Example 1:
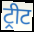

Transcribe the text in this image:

ट्रीट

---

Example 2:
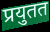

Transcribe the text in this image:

प्रयुतत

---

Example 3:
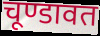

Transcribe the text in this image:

चूण्डावत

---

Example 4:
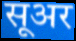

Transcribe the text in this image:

सूअर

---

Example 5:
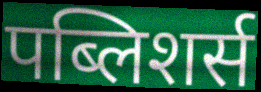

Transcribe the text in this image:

पब्लिशर्स